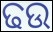
ଢଉ